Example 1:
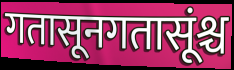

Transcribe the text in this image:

गतासूनगतासूंश्च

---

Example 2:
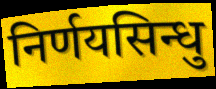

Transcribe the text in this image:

निर्णयसिन्धु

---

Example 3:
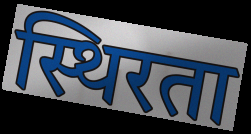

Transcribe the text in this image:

स्थिरता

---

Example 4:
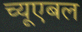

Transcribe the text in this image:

च्यूएबल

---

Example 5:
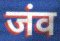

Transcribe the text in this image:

जंव